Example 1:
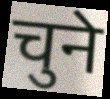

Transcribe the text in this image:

चुने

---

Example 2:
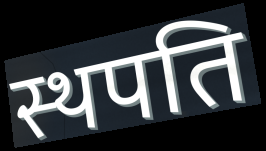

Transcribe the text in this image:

स्थपति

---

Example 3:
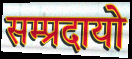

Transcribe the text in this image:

सम्प्रदायो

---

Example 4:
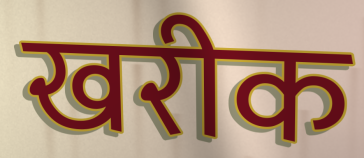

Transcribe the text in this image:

खरीक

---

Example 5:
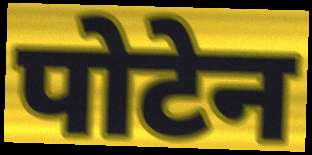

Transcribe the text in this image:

पोटेन